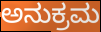
ಅನುಕ್ರಮ